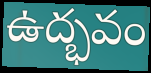
ఉద్భవం